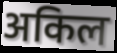
अकिल